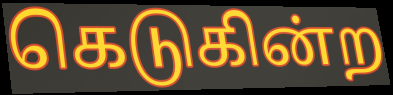
கெடுகின்ற